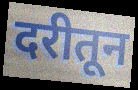
दरीतून